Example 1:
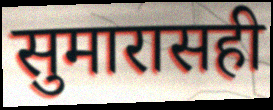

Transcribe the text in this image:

सुमारासही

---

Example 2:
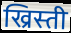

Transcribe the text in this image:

ख्रिस्ती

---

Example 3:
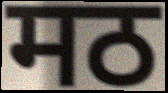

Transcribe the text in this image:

मठ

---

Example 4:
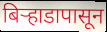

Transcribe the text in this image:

बिऱ्हाडापासून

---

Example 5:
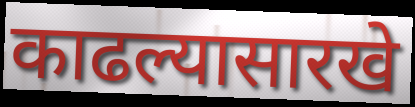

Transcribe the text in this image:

काढल्यासारखे